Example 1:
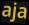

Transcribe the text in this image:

aja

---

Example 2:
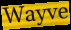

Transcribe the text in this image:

Wayve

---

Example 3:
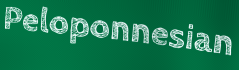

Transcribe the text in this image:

Peloponnesian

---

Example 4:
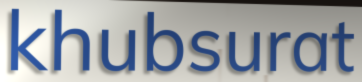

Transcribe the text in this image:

khubsurat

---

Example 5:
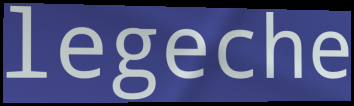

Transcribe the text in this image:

legeche